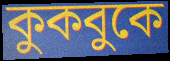
কুকবুকে